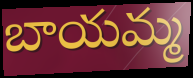
బాయమ్మ